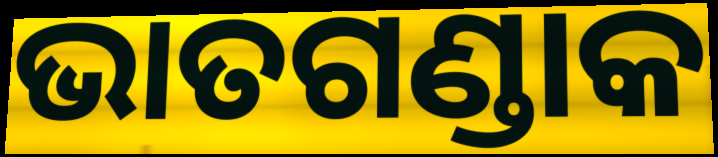
ଭାତଗଣ୍ଡାକ